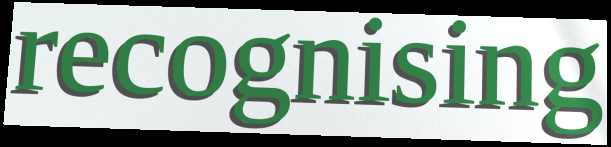
recognising